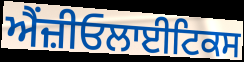
ਐਂਜ਼ੀਓਲਾਈਟਿਕਸ